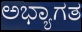
ಅಭ್ಯಾಗತ